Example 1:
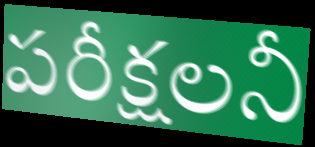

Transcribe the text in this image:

పరీక్షలనీ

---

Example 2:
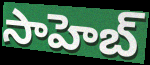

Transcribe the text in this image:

సాహెబ్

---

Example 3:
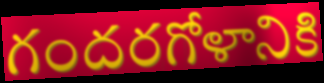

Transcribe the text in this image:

గందరగోళానికి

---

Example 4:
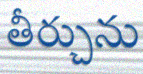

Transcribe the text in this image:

తీర్చును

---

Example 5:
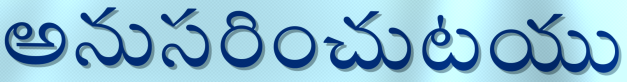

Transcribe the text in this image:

అనుసరించుటయు